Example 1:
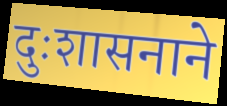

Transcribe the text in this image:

दुःशासनाने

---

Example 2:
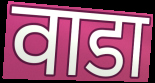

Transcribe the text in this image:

वाडा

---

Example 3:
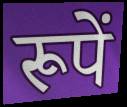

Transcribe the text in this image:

रूपें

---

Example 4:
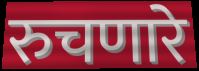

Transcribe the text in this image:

रुचणारे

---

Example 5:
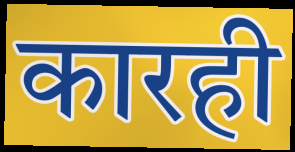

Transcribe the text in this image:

कारही